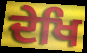
ਦੇਖਿ